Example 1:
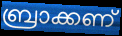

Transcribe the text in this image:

ബ്രാക്കണ്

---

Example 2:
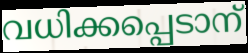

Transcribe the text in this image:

വധിക്കപ്പെടാന്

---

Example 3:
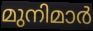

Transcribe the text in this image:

മുനിമാർ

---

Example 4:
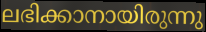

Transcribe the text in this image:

ലഭിക്കാനായിരുന്നു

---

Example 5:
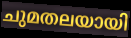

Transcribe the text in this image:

ചുമതലയായി